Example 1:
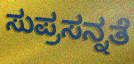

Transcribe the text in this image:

ಸುಪ್ರಸನ್ನತೆ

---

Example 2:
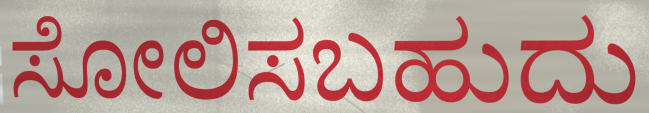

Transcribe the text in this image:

ಸೋಲಿಸಬಹುದು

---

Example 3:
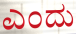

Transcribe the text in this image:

ಎಂದು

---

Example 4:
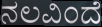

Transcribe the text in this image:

ನಲವಿಂದೆ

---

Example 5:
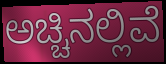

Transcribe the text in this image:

ಅಚ್ಚಿನಲ್ಲಿವೆ